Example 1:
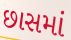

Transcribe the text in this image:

છાસમાં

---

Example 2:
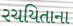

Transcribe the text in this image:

રચયિતાના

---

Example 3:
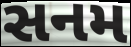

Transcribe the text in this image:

સનમ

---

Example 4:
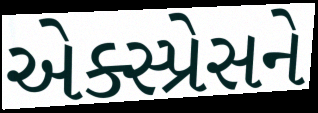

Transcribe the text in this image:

એક્સ્પ્રેસને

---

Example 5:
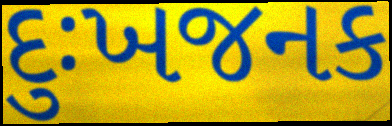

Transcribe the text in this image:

દુઃખજનક